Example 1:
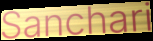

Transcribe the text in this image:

Sanchari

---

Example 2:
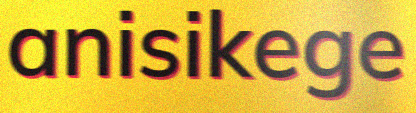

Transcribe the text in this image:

anisikege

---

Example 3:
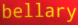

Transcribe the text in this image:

bellary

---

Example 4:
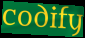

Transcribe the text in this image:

codify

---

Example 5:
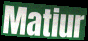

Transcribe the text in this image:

Matiur